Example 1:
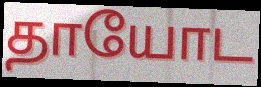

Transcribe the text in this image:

தாயோட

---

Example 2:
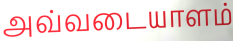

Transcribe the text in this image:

அவ்வடையாளம்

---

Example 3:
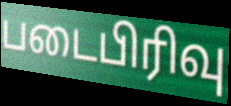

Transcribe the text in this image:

படைபிரிவு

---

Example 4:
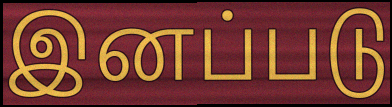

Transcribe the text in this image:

இனப்படு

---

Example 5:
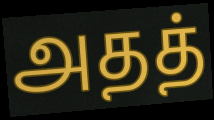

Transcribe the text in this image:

அதத்